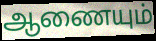
ஆணையும்